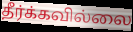
தீர்க்கவில்லை